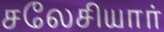
சலேசியார்